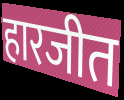
हारजीत